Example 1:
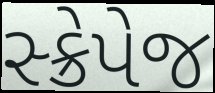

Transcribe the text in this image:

સ્ક્રેપેજ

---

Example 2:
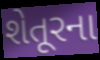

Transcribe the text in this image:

શેતૂરના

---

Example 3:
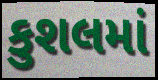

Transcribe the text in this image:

કુશલમાં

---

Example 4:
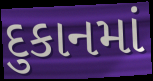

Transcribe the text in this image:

દુકાનમાં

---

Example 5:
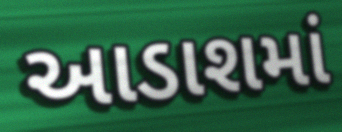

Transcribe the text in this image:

આડાશમાં